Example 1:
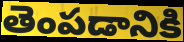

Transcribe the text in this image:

తెంపడానికి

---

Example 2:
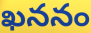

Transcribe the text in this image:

ఖననం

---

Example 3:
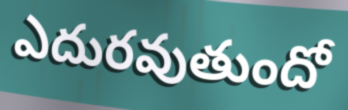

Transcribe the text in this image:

ఎదురవుతుందో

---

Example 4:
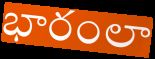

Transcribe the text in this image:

భారంలా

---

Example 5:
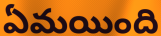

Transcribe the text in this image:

ఏమయింది